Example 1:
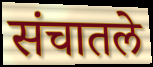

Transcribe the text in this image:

संचातले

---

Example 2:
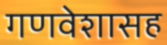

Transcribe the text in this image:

गणवेशासह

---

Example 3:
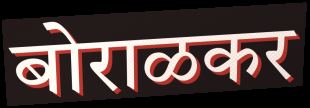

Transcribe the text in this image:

बोराळकर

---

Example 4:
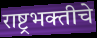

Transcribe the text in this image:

राष्ट्रभक्तीचे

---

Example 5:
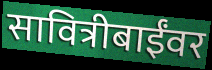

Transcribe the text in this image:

सावित्रीबाईंवर